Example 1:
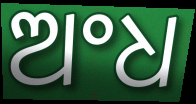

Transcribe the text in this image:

ଅଂଧ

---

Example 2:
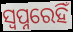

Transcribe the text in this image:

ସ୍ୱପ୍ନରେହିଁ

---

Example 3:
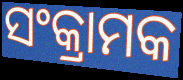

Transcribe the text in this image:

ସଂକ୍ରାମକ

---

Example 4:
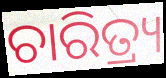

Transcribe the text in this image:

ଚାରିତ୍ର୍ୟ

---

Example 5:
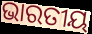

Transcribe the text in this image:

ଭାରତୀୟ